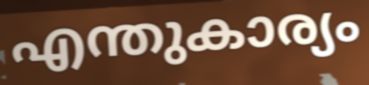
എന്തുകാര്യം